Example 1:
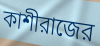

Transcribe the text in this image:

কাশীরাজের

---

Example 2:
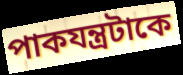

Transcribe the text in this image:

পাকযন্ত্রটাকে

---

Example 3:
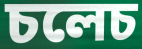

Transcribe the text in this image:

চলেচ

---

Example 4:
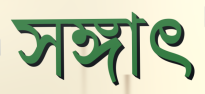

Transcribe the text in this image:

সঙ্গাৎ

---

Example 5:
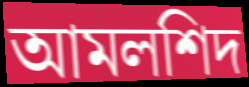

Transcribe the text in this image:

আমলশিদ